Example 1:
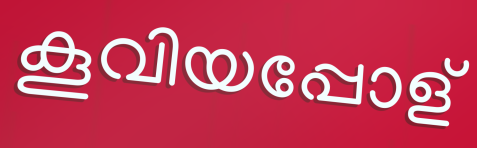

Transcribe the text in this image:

കൂവിയപ്പോള്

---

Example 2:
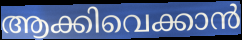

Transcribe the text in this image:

ആക്കിവെക്കാൻ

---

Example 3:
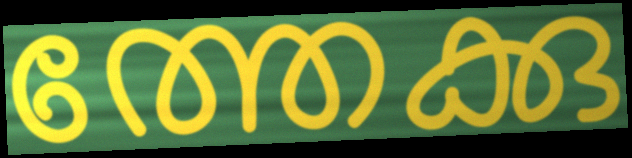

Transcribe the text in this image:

ത്തേക്കു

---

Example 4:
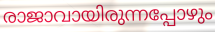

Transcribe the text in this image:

രാജാവായിരുന്നപ്പോഴും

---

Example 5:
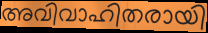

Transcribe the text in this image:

അവിവാഹിതരായി